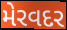
મેરવદર